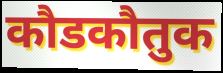
कौडकौतुक